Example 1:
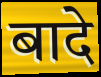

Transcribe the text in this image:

बादे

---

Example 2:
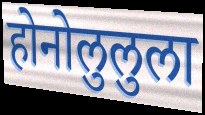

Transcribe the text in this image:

होनोलुलुला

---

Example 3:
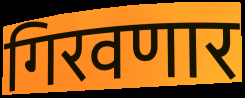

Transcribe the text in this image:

गिरवणार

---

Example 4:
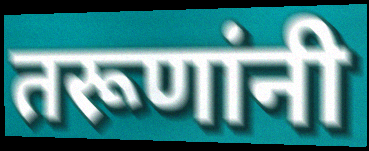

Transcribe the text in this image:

तरूणांनी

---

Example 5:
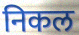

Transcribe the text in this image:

निकल